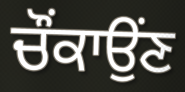
ਚੌਂਕਾਉਂਣ